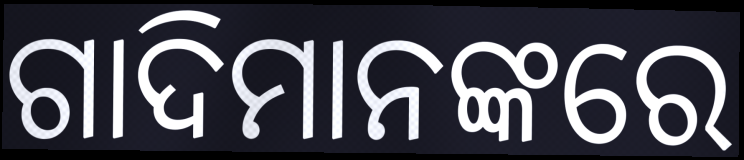
ଗାଦିମାନଙ୍କରେ